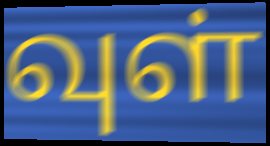
வுள்